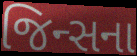
જિન્સના